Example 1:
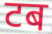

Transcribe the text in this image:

टब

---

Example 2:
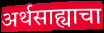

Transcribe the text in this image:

अर्थसाह्याचा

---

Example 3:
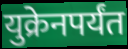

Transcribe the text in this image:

युक्रेनपर्यंत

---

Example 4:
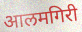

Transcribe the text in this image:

आलमगिरी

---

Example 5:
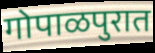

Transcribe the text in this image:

गोपाळपुरात